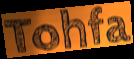
Tohfa